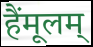
हैंमूलम्